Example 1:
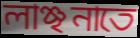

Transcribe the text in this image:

লাঞ্ছনাতে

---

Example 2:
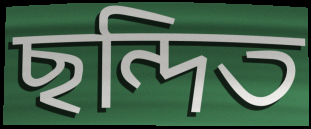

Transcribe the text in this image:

ছন্দিত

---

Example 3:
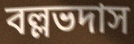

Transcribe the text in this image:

বল্লভদাস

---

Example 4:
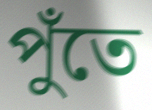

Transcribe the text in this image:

পুঁতে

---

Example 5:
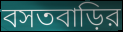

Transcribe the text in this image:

বসতবাড়ির